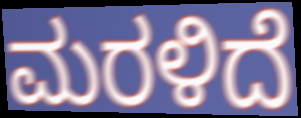
ಮರಳಿದೆ